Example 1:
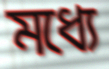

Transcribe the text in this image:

মধ্যে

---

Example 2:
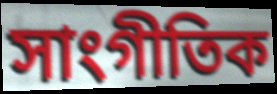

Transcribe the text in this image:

সাংগীতিক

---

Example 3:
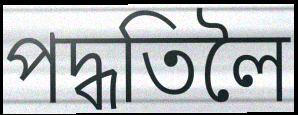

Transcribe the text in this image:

পদ্ধতিলৈ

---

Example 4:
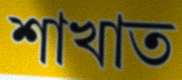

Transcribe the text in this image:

শাখাত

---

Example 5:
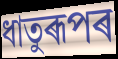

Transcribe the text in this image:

ধাতুৰূপৰ